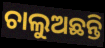
ଚାଲୁଅଛନ୍ତି